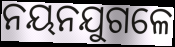
ନୟନଯୁଗଳେ